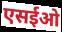
एसईओ